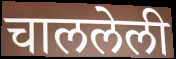
चाललेली